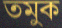
তমুক